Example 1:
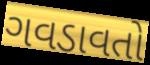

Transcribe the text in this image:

ગવડાવતો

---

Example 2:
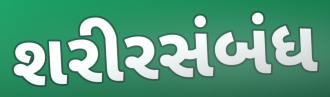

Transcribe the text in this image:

શરીરસંબંધ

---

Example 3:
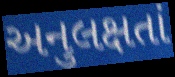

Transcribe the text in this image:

અનુલક્ષતાં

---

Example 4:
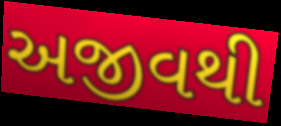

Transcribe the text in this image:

અજીવથી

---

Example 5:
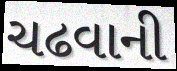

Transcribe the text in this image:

ચઢવાની